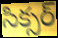
సిక్సర్